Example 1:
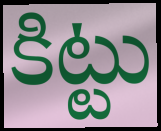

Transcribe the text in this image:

కిట్టు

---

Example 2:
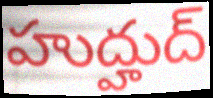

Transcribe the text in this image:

హుద్హుద్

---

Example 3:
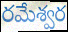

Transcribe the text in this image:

రమేశ్వర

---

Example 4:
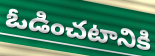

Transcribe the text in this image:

ఓడించటానికి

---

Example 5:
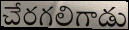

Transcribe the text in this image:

చేరగలిగాడు